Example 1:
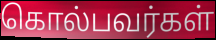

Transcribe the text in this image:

கொல்பவர்கள்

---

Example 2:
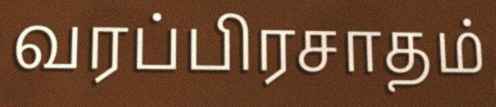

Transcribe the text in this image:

வரப்பிரசாதம்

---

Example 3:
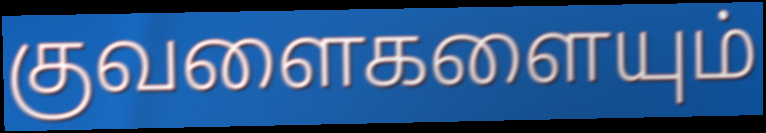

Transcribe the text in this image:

குவளைகளையும்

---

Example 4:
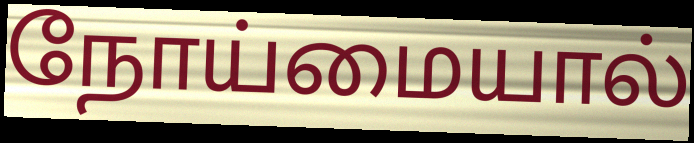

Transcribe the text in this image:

நோய்மையால்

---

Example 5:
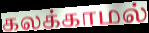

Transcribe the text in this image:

கலக்காமல்